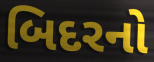
બિદરનો